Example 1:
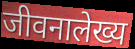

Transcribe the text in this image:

जीवनालेख्य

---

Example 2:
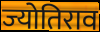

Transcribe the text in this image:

ज्‍योतिराव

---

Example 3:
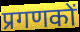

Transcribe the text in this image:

प्रगणकों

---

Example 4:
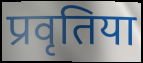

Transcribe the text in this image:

प्रवृतिया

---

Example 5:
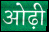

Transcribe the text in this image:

ओढ़ी